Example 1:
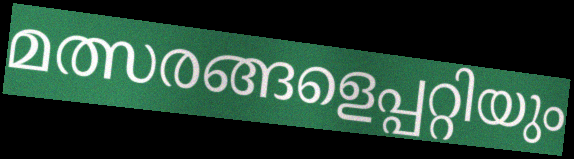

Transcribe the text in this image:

മത്സരങ്ങളെപ്പറ്റിയും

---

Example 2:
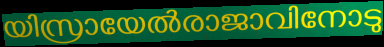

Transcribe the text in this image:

യിസ്രായേൽരാജാവിനോടു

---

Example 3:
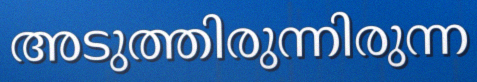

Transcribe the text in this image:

അടുത്തിരുന്നിരുന്ന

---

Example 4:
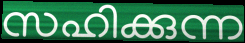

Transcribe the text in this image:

സഹിക്കുന്ന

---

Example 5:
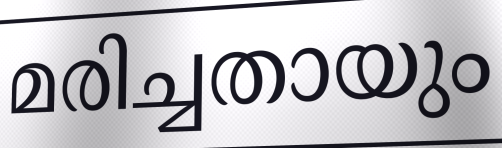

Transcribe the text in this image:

മരിച്ചതായും